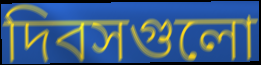
দিবসগুলো